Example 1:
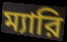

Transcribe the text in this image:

ম্যারি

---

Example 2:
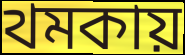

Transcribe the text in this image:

থমকায়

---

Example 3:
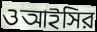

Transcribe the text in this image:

ওআইসির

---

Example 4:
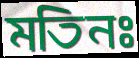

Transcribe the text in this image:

মতিনঃ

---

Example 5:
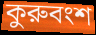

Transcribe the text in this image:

কুরুবংশ